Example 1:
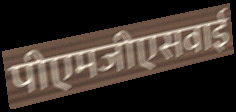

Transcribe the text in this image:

पीएमजीएसवाई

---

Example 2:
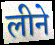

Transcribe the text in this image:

लीने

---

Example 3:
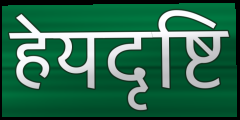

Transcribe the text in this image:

हेयदृष्टि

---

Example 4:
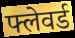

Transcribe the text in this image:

फ्लेवर्ड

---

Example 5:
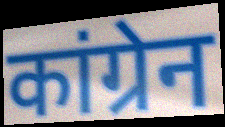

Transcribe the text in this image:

कांग्रेन